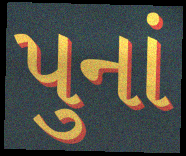
પુનાં